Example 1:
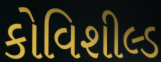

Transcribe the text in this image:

કોવિશીલ્ડ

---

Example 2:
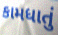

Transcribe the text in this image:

કામધાતું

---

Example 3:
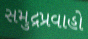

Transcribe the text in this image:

સમુદ્રપ્રવાહો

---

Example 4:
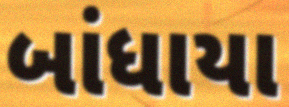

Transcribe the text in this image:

બાંધાયા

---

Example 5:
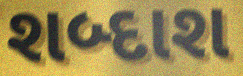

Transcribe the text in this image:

શબ્દાશ